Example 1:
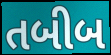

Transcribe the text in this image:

તબીબ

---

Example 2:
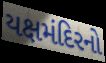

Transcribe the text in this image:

યક્ષમંદિરનો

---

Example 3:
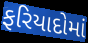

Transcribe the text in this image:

ફરિયાદોમાં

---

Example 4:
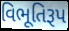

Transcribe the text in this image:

વિભૂતિરૂપ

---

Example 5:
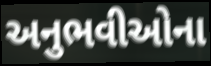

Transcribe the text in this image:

અનુભવીઓના